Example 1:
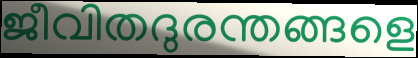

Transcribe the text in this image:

ജീവിതദുരന്തങ്ങളെ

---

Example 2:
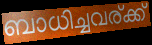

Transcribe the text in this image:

ബാധിച്ചവര്ക്ക്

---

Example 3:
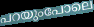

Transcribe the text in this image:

പറയുംപോലെ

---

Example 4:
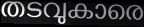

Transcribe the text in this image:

തടവുകാരെ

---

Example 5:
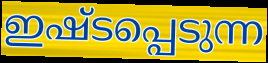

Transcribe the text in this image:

ഇഷ്ടപ്പെടുന്ന